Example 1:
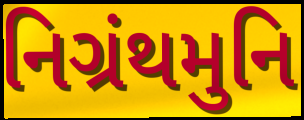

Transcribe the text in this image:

નિગ્રંથમુનિ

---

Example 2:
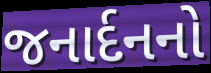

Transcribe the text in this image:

જનાર્દનનો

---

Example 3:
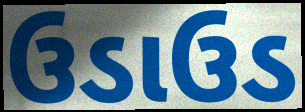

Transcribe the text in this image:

ઉડાઉડ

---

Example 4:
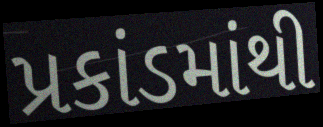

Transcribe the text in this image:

પ્રકાંડમાંથી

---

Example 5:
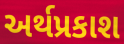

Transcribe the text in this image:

અર્થપ્રકાશ